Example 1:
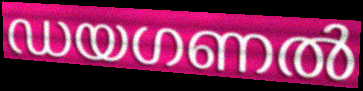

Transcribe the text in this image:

ഡയഗണൽ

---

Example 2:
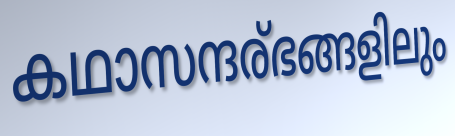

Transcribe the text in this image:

കഥാസന്ദര്ഭങ്ങളിലും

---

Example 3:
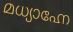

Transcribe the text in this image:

മധ്യാഹ്നേ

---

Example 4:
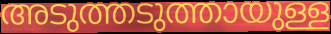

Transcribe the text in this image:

അടുത്തടുത്തായുള്ള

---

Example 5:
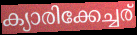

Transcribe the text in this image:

ക്യാരിക്കേച്ചര്